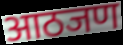
आठजण